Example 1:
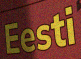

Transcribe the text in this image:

Eesti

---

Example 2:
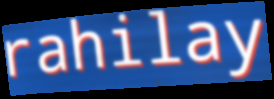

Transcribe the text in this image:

rahilay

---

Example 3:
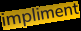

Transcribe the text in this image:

impliment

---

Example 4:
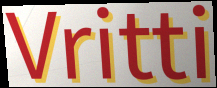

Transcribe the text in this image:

Vritti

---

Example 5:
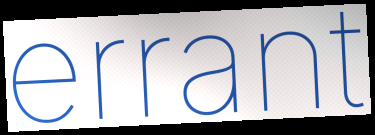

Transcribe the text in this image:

errant